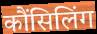
कौंसिलिंग